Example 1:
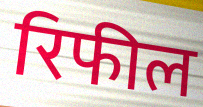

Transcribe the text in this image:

रिफील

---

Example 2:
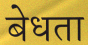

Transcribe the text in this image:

बेधता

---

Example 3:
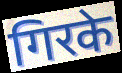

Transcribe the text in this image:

गिरके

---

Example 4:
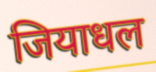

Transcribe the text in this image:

जियाधल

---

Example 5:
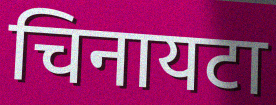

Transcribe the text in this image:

चिनायटा